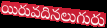
యిరువదినలుగురు